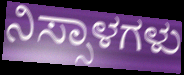
ನಿಸ್ಸಾಳಗಳು